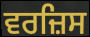
ਵਰਜ਼ਿਸ